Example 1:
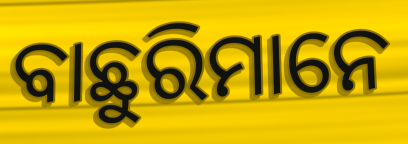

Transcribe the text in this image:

ବାଛୁରିମାନେ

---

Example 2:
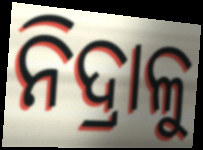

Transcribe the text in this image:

ନିଦ୍ରାଳୁ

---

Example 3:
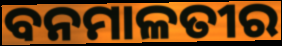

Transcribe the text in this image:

ବନମାଳତୀର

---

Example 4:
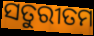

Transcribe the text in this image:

ସତୁରୀତମ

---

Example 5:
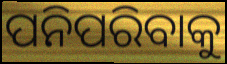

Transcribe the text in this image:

ପନିପରିବାକୁ